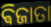
ଵିଜାତା